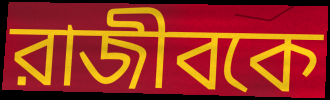
রাজীবকে